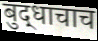
बुद्धाचाच